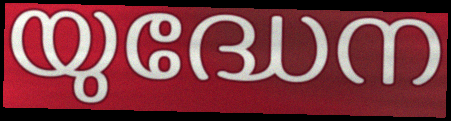
യുദ്ധേന